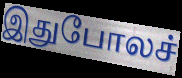
இதுபோலச்